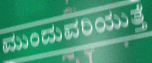
ಮುಂದುವರಿಯುತ್ತೆ